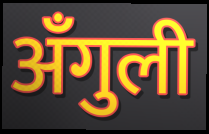
अँगुली